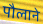
पौलाने